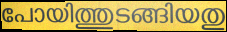
പോയിത്തുടങ്ങിയതു